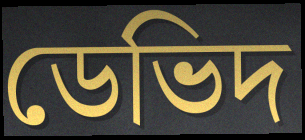
ডেভিদ